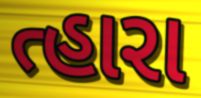
ત્હારા